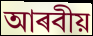
আৰবীয়